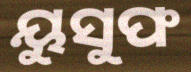
ୟୁସୁଫ